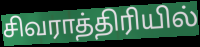
சிவராத்திரியில்